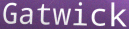
Gatwick